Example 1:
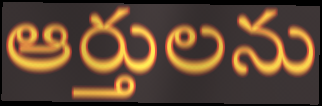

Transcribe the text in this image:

ఆర్తులను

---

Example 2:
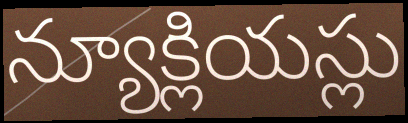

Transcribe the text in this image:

న్యూక్లియస్లు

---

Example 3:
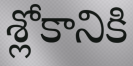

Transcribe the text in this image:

శ్లోకానికి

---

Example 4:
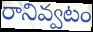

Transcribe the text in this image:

రానివ్వటం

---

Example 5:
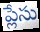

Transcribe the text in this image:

ప్లేసు